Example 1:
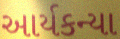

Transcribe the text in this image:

આર્યકન્યા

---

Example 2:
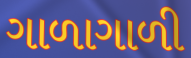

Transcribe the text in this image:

ગાળાગાળી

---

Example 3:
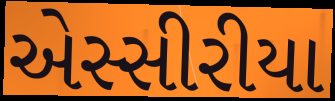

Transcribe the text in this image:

એસ્સીરીયા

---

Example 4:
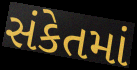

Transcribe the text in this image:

સંકેતમાં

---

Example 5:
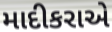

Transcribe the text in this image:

માદીકરાએ